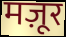
मज़ूर